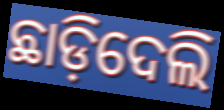
ଛାଡ଼ିଦେଲି